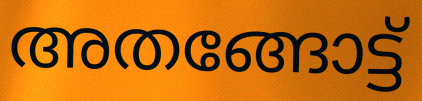
അതങ്ങോട്ട്